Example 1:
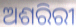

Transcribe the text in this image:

ଅଶରିରୀ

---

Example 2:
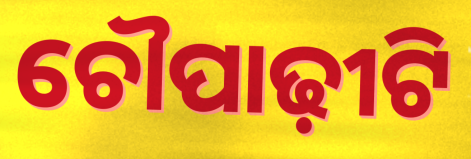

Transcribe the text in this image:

ଚୌପାଢ଼ୀଟି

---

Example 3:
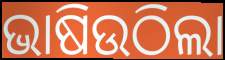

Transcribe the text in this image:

ଭାଷିଉଠିଲା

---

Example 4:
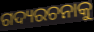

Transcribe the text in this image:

ଗଦ୍ୟରଚନାକୁ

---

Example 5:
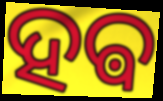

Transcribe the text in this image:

ହଵ